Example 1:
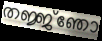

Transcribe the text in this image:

തജ്ജ്ഞോ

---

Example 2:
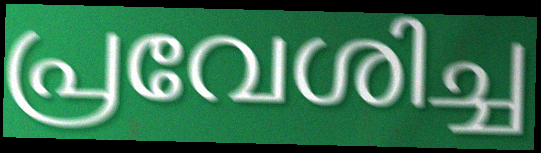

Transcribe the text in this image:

പ്രവേശിച്ച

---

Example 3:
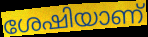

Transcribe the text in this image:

ശേഷിയാണ്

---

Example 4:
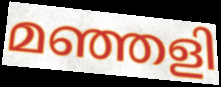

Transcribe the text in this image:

മഞ്ഞളി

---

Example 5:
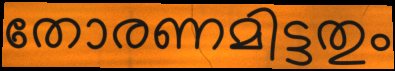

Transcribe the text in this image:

തോരണമിട്ടതും